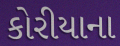
કોરીયાના